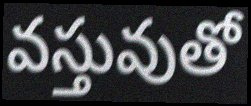
వస్తువుతో